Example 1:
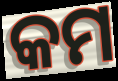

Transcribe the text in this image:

କମ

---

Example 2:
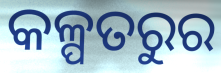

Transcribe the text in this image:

କଳ୍ପତରୁର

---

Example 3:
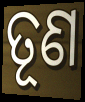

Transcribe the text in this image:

ତୂଣ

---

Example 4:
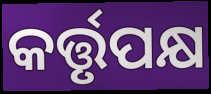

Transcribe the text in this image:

କର୍ତ୍ତୃପକ୍ଷ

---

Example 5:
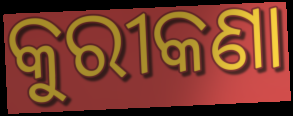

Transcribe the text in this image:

କୁରୀକଣା